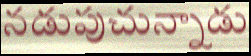
నడుపుచున్నాడు